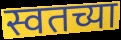
स्वतच्या